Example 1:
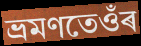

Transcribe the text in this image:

ভ্ৰমণতেওঁৰ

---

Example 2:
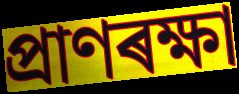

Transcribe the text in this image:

প্ৰাণৰক্ষা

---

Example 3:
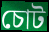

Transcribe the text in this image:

চোট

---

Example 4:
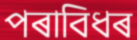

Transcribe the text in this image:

পৰাবিধৰ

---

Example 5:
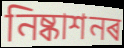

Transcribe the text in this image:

নিষ্কাশনৰ